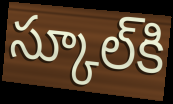
స్కూల్‌కి